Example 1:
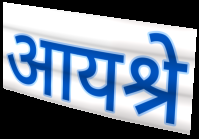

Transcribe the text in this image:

आयश्रे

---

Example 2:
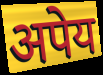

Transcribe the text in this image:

अपेय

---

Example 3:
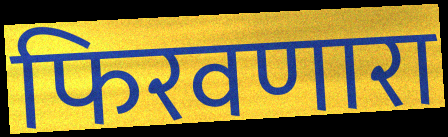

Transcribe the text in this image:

फिरवणारा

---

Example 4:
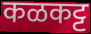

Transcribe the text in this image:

कळकट्ट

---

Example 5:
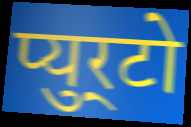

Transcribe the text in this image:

प्युर्टो